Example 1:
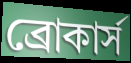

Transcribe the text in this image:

ব্রোকার্স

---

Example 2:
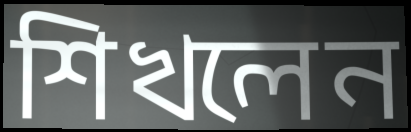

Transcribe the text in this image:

শিখলেন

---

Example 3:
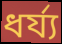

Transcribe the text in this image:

ধর্য্য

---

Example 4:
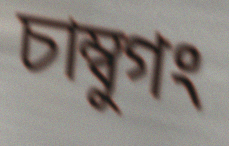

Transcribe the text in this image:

চাম্বুগং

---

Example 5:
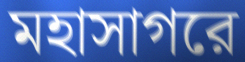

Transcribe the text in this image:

মহাসাগরে